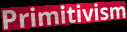
Primitivism